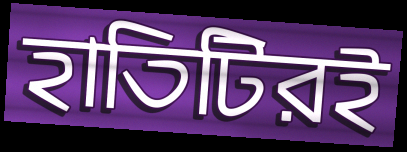
হাতিটিরই